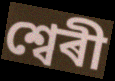
শ্বেৰী